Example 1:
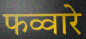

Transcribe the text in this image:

फव्वारे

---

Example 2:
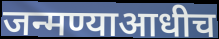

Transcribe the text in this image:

जन्मण्याआधीच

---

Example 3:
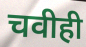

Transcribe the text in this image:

चवीही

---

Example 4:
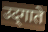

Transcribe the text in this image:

उद्‌गाते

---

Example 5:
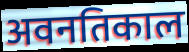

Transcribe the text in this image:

अवनतिकाल